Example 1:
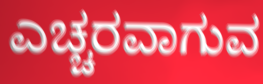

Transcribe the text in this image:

ಎಚ್ಚರವಾಗುವ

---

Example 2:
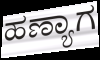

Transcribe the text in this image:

ಹಣ್ಯಾಗ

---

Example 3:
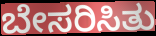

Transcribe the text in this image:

ಬೇಸರಿಸಿತು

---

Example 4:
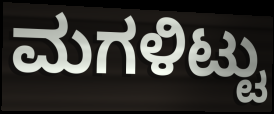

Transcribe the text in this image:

ಮಗಳಿಟ್ಟು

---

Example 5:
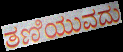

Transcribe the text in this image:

ತಣಿಯುವದು